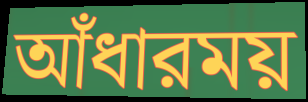
আঁধারময়